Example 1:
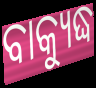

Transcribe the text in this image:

ବାକ୍ଯୁଦ୍ଧ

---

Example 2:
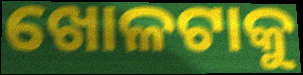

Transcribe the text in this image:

ଖୋଳଟାକୁ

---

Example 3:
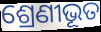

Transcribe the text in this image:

ଶ୍ରେଣୀଭୂତ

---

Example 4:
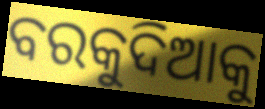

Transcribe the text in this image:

ବରକୁଦିଆକୁ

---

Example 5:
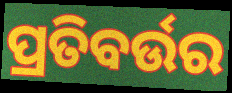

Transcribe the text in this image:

ପ୍ରତିବର୍ଉର